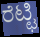
ರೆಟ್ಟಿ